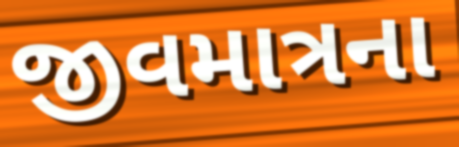
જીવમાત્રના